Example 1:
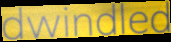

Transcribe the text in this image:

dwindled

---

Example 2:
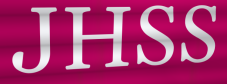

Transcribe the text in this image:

JHSS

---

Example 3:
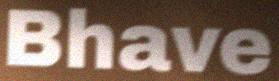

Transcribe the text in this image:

Bhave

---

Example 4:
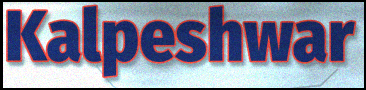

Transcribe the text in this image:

Kalpeshwar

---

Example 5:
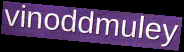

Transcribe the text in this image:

vinoddmuley